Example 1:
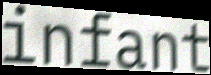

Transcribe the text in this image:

infant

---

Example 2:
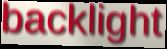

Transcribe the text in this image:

backlight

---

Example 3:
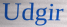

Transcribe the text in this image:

Udgir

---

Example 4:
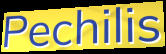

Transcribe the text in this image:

Pechilis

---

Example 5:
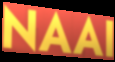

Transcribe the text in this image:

NAAI